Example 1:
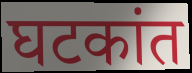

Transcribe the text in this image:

घटकांत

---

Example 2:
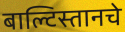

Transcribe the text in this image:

बाल्टिस्तानचे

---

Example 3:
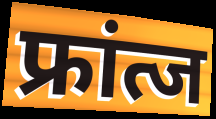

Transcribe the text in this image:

फ्रांत्ज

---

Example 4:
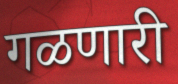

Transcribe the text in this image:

गळणारी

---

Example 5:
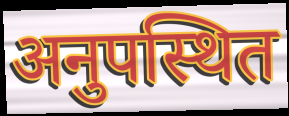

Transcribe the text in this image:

अनुपस्थित